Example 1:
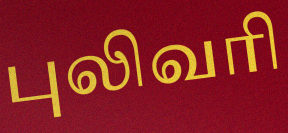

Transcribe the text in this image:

புலிவரி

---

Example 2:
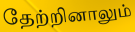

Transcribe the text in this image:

தேற்றினாலும்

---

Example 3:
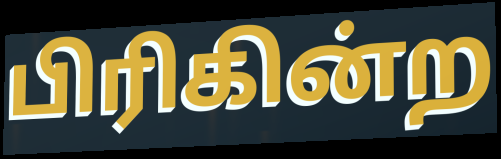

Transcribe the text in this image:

பிரிகின்ற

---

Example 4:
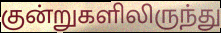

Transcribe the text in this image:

குன்றுகளிலிருந்து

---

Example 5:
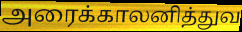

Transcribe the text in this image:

அரைக்காலனித்துவ